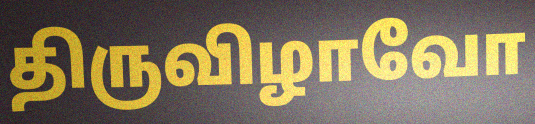
திருவிழாவோ